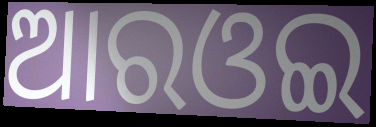
ଆରଓଇ